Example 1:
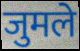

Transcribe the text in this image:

जुमले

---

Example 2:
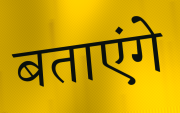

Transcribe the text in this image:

बताएंगे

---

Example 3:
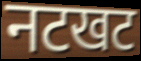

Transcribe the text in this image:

नटखट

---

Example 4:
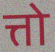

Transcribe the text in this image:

त्तो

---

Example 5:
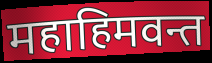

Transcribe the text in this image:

महाहिमवन्त